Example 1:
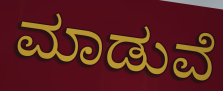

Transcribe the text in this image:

ಮಾಡುವೆ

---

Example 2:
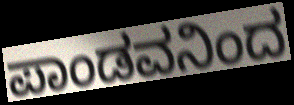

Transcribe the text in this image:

ಪಾಂಡವನಿಂದ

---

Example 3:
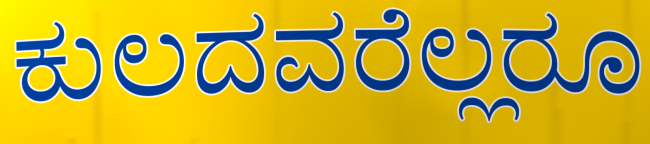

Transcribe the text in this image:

ಕುಲದವರೆಲ್ಲರೂ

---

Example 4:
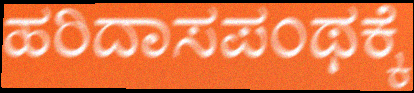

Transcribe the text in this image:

ಹರಿದಾಸಪಂಥಕ್ಕೆ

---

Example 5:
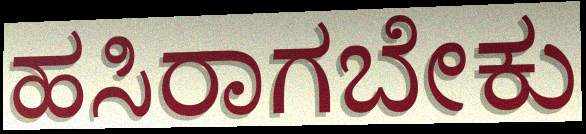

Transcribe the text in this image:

ಹಸಿರಾಗಬೇಕು